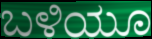
ಬಳಿಯೂ